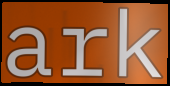
ark